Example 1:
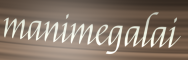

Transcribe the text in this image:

manimegalai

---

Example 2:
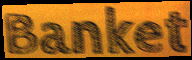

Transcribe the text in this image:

Banket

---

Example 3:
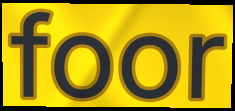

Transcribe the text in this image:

foor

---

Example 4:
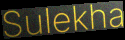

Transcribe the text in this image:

Sulekha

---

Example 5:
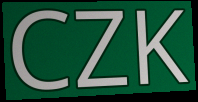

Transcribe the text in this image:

CZK